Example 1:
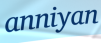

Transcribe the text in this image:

anniyan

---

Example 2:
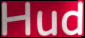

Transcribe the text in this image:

Hud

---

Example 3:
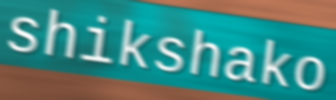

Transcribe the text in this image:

shikshako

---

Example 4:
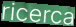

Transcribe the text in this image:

ricerca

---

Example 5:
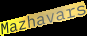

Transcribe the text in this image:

Mazhavars